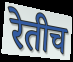
रेतीच